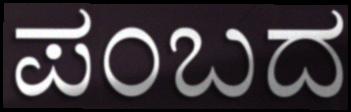
ಪಂಬದ